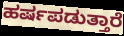
ಹರ್ಷಪಡುತ್ತಾರೆ